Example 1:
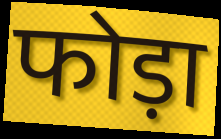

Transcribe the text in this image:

फोड़ा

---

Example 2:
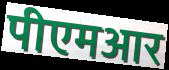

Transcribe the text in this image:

पीएमआर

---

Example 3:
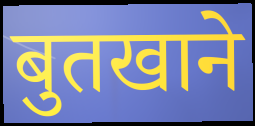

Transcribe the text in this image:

बुतखाने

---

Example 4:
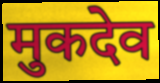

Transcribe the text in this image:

मुकदेव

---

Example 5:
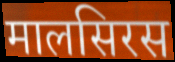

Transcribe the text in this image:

मालसिरस